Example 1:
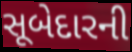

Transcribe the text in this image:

સૂબેદારની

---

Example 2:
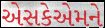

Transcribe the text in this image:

એસકેએમને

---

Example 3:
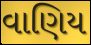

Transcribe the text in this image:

વાણિય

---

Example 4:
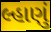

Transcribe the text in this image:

લ્હાણું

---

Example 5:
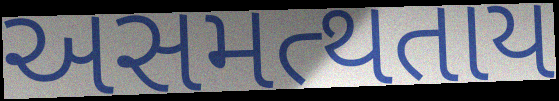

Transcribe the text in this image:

અસમત્થતાય